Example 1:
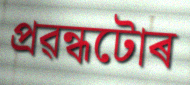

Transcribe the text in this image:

প্ৰৱন্ধটোৰ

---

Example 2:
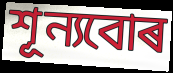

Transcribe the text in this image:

শূন্যবোৰ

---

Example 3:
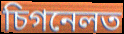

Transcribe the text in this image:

চিগনেলত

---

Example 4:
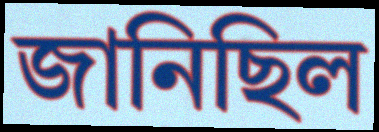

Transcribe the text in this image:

জানিছিল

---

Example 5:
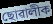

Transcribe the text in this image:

ছোৱালীক